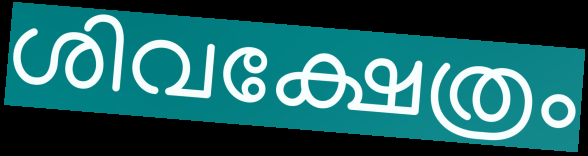
ശിവക്ഷേത്രം